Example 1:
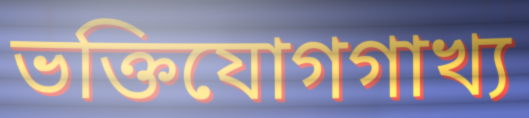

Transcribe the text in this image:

ভক্তিযোগগাখ্য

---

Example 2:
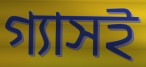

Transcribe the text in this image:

গ্যাসই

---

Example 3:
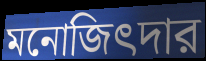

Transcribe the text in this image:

মনোজিৎদার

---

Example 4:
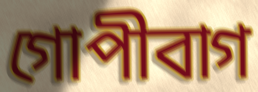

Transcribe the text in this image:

গোপীবাগ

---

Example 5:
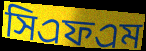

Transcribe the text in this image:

সিএফএম